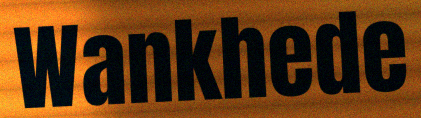
Wankhede